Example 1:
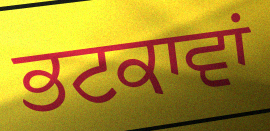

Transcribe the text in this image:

ਭਟਕਾਵਾਂ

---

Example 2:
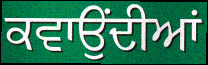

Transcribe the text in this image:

ਕਵਾਉਂਦੀਆਂ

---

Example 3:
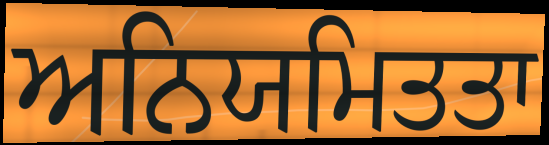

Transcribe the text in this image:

ਅਨਿਯਮਿਤਤਾ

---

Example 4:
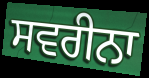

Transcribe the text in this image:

ਸਵਰੀਨਾ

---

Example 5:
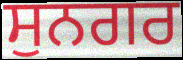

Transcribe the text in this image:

ਸੁਨਗਰ